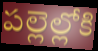
పల్లెల్లోకి